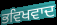
ਭਵਿਖਵਾਦ